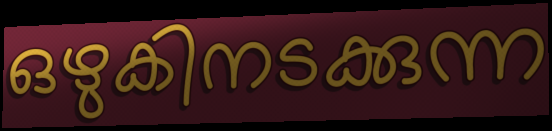
ഒഴുകിനടക്കുന്ന